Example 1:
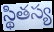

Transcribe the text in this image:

స్థితస్య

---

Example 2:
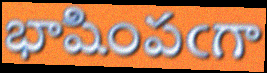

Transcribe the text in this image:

భాషింపఁగా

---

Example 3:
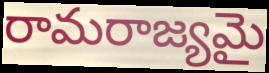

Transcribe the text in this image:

రామరాజ్యమై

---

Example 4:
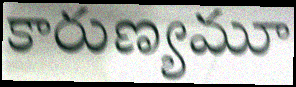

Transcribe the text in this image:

కారుణ్యమూ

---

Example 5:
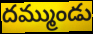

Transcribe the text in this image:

దమ్ముండు